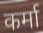
कर्मा